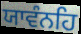
ਯਾਵੰਨਹਿ